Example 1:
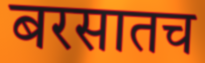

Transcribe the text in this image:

बरसातच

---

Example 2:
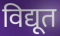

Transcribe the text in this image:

विद्यूत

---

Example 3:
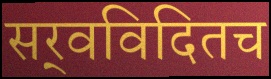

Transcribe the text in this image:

सर्वविदितच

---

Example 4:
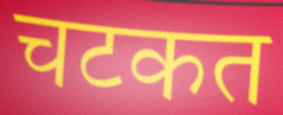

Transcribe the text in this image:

चटकत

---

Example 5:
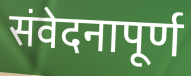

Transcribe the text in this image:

संवेदनापूर्ण